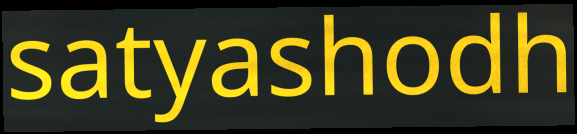
satyashodh